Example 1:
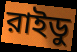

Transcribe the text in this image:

রাইডু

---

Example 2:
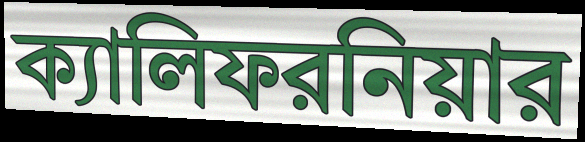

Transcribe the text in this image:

ক্যালিফরনিয়ার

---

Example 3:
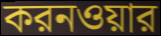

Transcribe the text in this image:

করনওয়ার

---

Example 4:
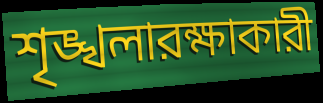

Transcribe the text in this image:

শৃঙ্খলারক্ষাকারী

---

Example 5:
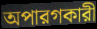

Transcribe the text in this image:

অপারগকারী